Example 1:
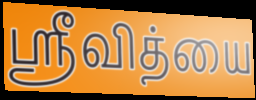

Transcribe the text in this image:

ஸ்ரீவித்யை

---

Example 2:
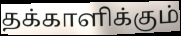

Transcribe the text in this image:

தக்காளிக்கும்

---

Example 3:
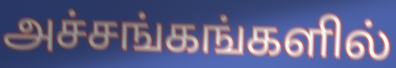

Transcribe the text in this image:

அச்சங்கங்களில்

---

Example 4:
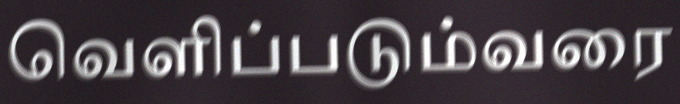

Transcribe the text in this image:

வெளிப்படும்வரை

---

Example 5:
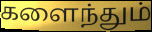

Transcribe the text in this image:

களைந்தும்